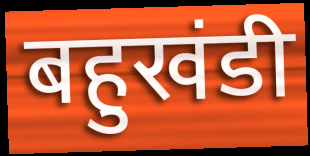
बहुखंडी